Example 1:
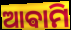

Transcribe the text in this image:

ଆଵାମି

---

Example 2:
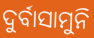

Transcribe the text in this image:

ଦୁର୍ବାସାମୁନି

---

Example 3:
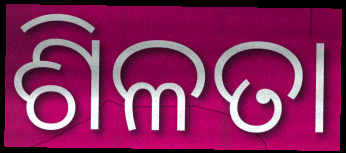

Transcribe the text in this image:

ଶିଳତା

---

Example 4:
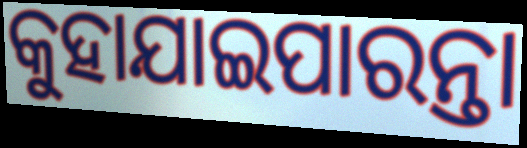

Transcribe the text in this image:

କୁହାଯାଇପାରନ୍ତା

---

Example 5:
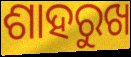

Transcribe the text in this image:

ଶାହରୁଖ